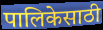
पालिकेसाठी